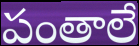
పంతాలే